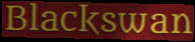
Blackswan